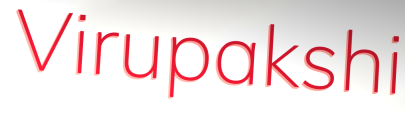
Virupakshi